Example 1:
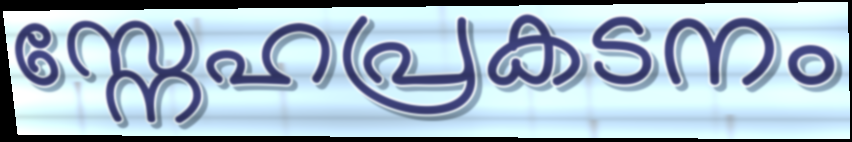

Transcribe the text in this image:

സ്നേഹപ്രകടനം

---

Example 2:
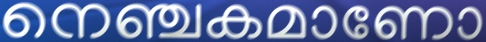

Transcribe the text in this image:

നെഞ്ചകമാണോ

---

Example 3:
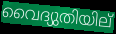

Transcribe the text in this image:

വൈദ്യുതിയില്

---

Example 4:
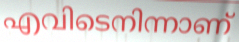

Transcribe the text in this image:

എവിടെനിന്നാണ്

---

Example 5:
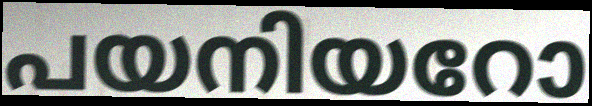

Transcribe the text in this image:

പയനിയറോ